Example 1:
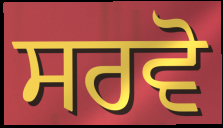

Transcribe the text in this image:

ਸਰਵੋ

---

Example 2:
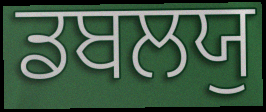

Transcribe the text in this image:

ਡਬਲਯੁ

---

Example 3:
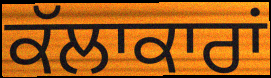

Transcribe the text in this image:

ਕੱਲਾਕਾਰਾਂ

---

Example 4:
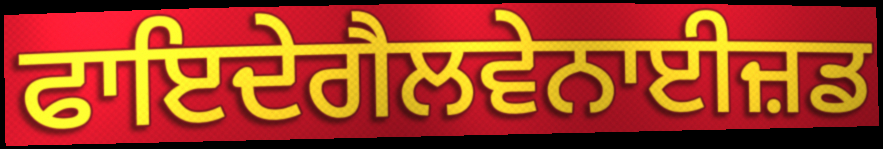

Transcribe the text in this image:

ਫਾਇਦੇਗੈਲਵੇਨਾਈਜ਼ਡ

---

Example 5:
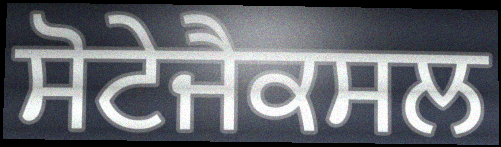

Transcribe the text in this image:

ਸੋਟੇਜੈਕਸਲ